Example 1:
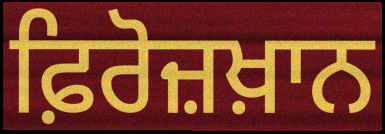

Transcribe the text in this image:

ਫ਼ਿਰੋਜ਼ਖ਼ਾਨ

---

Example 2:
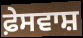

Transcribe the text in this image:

ਫ਼ੇਸਵਾਸ਼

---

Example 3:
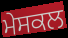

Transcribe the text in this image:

ਮੇਸਕਲ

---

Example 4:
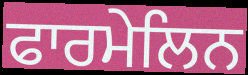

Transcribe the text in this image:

ਫਾਰਮੇਲਿਨ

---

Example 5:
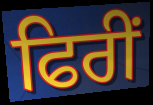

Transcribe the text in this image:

ਫਿਰੀਂ